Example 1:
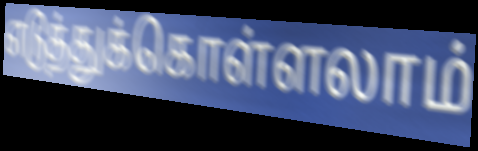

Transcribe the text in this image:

எடுத்துக்கொள்ளலாம்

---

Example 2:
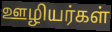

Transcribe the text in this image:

ஊழியர்கள்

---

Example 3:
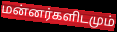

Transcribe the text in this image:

மன்னர்களிடமும்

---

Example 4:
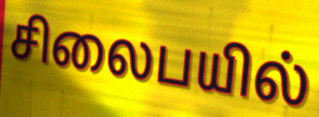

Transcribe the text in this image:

சிலைபயில்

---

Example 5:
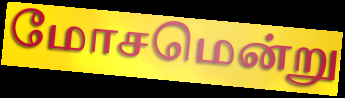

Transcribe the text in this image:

மோசமென்று